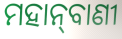
ମହାନ୍‌ବାଣୀ